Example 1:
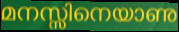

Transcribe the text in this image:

മനസ്സിനെയാണു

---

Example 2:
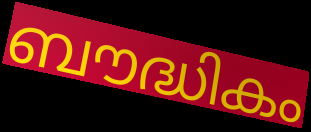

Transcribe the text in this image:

ബൗദ്ധികം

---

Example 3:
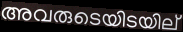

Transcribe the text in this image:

അവരുടെയിടയില്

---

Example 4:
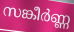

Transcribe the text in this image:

സങ്കീർണ്ണ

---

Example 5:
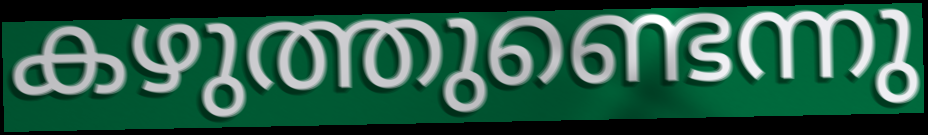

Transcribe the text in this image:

കഴുത്തുണ്ടെന്നു